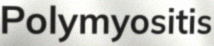
Polymyositis